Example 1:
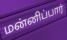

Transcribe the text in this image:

மன்னிப்பார்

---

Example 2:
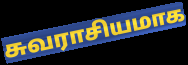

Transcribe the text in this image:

சுவராசியமாக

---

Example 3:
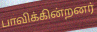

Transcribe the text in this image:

பாவிக்கின்றனர்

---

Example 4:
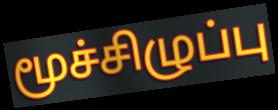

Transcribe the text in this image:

மூச்சிழுப்பு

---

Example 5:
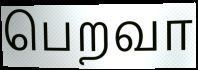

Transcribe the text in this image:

பெறவா